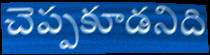
చెప్పకూడనిది